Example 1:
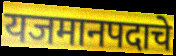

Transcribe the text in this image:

यजमानपदाचे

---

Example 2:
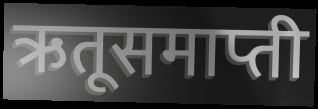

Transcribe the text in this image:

ऋतूसमाप्ती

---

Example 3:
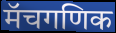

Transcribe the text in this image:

मॅचगणिक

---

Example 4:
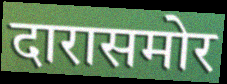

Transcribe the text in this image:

दारासमोर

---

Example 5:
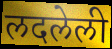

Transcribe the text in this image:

लदलेली